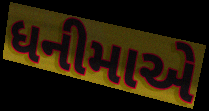
ધનીમાએ